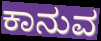
ಕಾನುವ